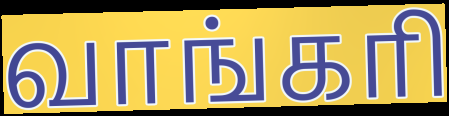
வாங்கரி